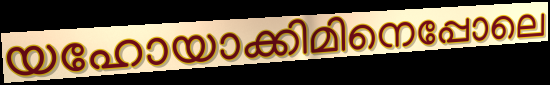
യഹോയാക്കിമിനെപ്പോലെ